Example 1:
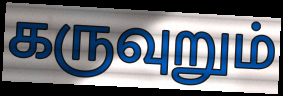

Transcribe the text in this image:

கருவுறும்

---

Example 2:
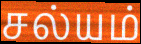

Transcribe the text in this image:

சல்யம்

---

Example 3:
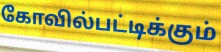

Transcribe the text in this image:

கோவில்பட்டிக்கும்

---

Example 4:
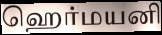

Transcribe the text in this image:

ஹெர்மயனி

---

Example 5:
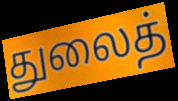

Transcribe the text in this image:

துலைத்